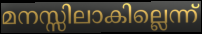
മനസ്സിലാകില്ലെന്ന്